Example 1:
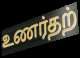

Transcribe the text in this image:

உணர்தற்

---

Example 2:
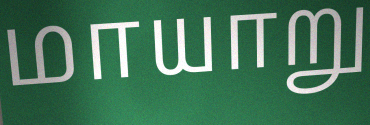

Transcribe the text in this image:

மாயாறு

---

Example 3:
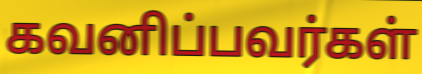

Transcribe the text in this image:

கவனிப்பவர்கள்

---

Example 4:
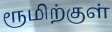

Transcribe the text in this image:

ரூமிற்குள்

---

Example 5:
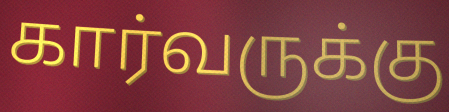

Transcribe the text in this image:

கார்வருக்கு